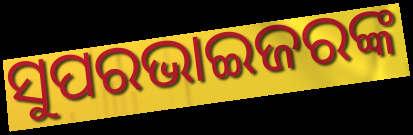
ସୁପରଭାଇଜରଙ୍କ